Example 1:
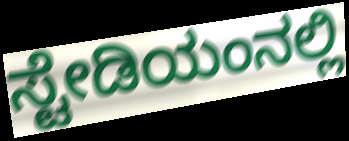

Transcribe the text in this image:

ಸ್ಟೇಡಿಯಂನಲ್ಲಿ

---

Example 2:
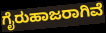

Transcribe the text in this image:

ಗೈರುಹಾಜರಾಗಿವೆ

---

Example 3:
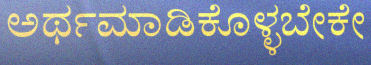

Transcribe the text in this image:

ಅರ್ಥಮಾಡಿಕೊಳ್ಳಬೇಕೇ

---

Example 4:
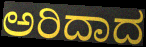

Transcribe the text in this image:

ಅರಿದಾದ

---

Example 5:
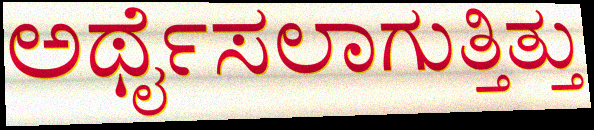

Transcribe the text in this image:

ಅರ್ಥೈಸಲಾಗುತ್ತಿತ್ತು